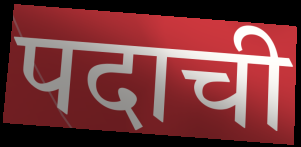
पदाची